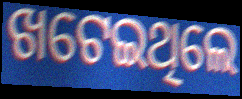
ଖଟେଇଥିଲେ